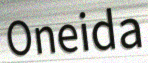
Oneida